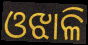
ଓଝାଳି